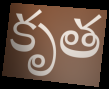
కృత